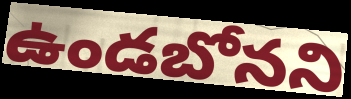
ఉండబోనని